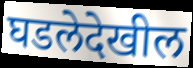
घडलेदेखील